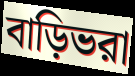
বাড়িভরা